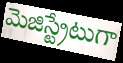
మెజిస్ట్రేటుగా